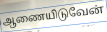
ஆணையிடுவேன்